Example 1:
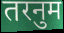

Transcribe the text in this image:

तरनुम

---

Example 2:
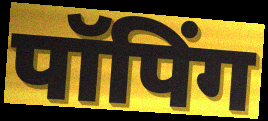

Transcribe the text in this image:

पॉपिंग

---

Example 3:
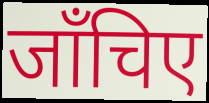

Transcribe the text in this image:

जाँचिए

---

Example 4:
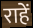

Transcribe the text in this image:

राहें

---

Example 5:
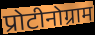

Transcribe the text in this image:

प्रोटीनोग्राम